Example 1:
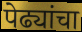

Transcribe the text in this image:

पेढ्यांचा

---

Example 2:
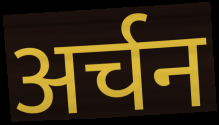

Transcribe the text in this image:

अर्चन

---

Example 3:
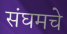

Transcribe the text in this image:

संघमचे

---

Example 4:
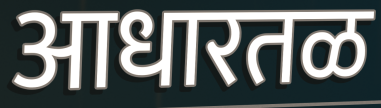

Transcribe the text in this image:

आधारतळ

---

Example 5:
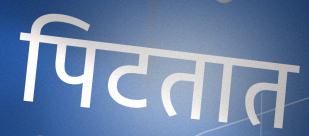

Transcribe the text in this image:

पिटतात